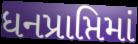
ધનપ્રાપ્તિમાં